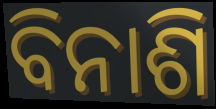
ବିନାଶି